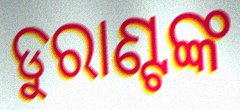
ଡୁରାଣ୍ଟଙ୍କ